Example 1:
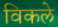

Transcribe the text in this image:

विकले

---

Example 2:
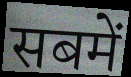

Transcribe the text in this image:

सबमें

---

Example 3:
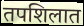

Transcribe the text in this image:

तपशिलात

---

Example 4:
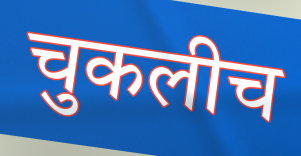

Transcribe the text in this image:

चुकलीच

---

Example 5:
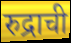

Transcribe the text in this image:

रुद्राची